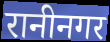
रानीनगर